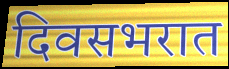
दिवसभरात